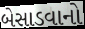
બેસાડવાનો